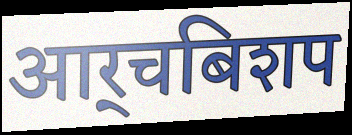
आर्चबिशप